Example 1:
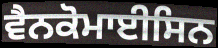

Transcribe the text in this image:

ਵੈਨਕੋਮਾਈਸਿਨ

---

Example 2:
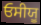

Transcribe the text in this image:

ਓਸੀਯੂ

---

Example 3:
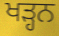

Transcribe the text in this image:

ਖੜ੍ਹਨ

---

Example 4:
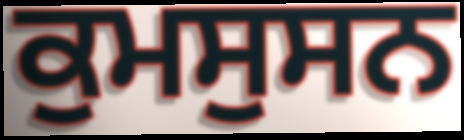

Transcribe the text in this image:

ਕੁਮਸੁਸਨ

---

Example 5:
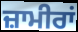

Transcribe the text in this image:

ਜ਼ਾਮੀਰਾਂ